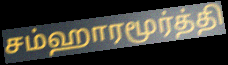
சம்ஹாரமூர்த்தி